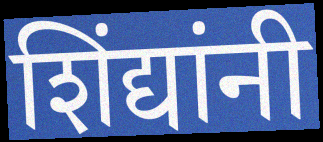
शिंद्यांनी